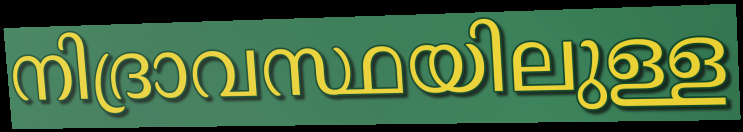
നിദ്രാവസ്ഥയിലുള്ള